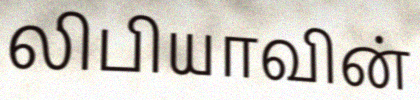
லிபியாவின்